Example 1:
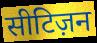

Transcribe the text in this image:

सीटिज़न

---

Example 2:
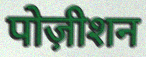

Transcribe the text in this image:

पोज़ीशन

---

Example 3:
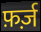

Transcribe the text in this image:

फ़र्ज़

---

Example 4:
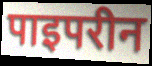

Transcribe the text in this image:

पाइपरीन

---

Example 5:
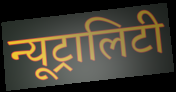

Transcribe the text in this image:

न्यूट्रालिटी